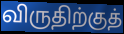
விருதிற்குத்